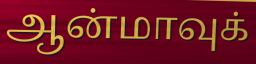
ஆன்மாவுக்